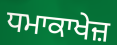
ਧਮਾਕਾਖੇਜ਼